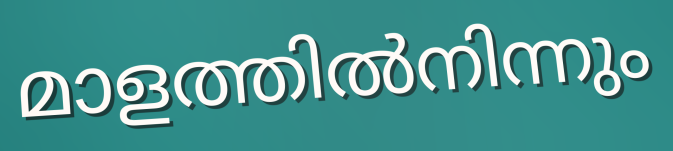
മാളത്തിൽനിന്നും